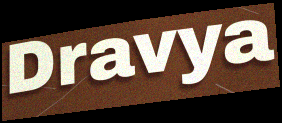
Dravya